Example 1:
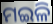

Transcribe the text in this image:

ମଇଳି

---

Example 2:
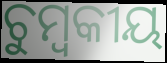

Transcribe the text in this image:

ଚୁମ୍ବକୀୟ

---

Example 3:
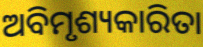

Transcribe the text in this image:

ଅବିମୃଶ୍ୟକାରିତା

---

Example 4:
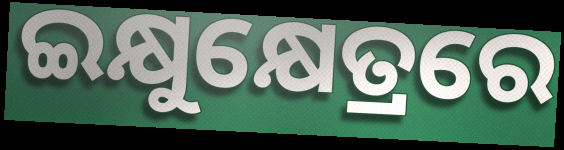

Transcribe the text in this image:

ଇକ୍ଷୁକ୍ଷେତ୍ରରେ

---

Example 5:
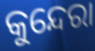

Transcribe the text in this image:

କୁନ୍ଦେରା